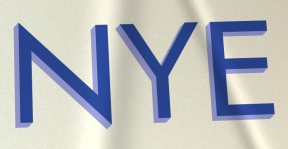
NYE